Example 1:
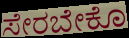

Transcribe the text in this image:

ಸೇರಬೇಕೊ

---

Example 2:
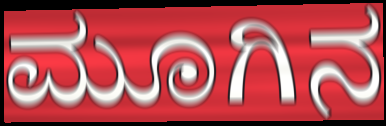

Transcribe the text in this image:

ಮೂಗಿನ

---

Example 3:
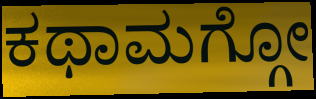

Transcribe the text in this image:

ಕಥಾಮಗ್ಗೋ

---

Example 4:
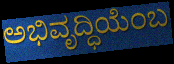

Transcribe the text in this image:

ಅಭಿವೃದ್ಧಿಯೆಂಬ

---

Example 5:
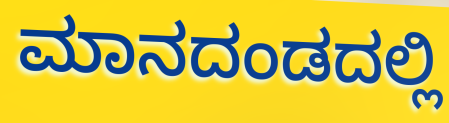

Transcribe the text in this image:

ಮಾನದಂಡದಲ್ಲಿ